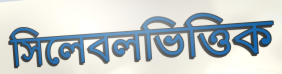
সিলেবলভিত্তিক